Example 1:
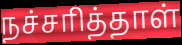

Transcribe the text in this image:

நச்சரித்தாள்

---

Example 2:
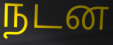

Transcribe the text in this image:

நடன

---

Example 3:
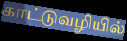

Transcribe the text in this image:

காட்டுவழியில்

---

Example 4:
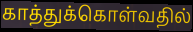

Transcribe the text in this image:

காத்துக்கொள்வதில்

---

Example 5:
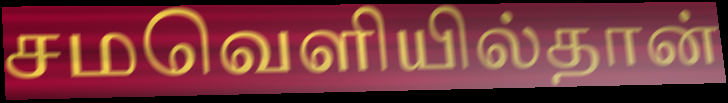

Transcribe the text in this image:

சமவெளியில்தான்